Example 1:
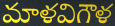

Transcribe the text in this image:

మాళవిగౌళ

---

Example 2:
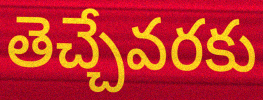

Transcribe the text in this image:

తెచ్చేవరకు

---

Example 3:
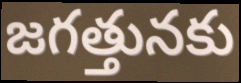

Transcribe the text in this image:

జగత్తునకు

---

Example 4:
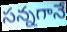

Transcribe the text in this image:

సన్నగానే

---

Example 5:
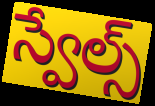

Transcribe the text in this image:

స్వేల్స్